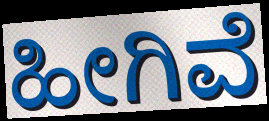
ಹೀಗಿವೆ